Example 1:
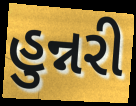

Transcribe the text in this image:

હુન્નરી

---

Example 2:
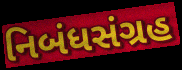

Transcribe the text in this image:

નિબંધસંગ્રહ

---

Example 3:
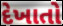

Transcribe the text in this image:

દેખાતો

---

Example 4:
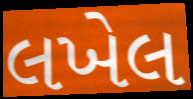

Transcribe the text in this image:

લખેલ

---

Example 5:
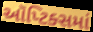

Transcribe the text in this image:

ઑપ્ટિક્સમાં